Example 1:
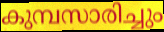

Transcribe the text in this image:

കുമ്പസാരിച്ചും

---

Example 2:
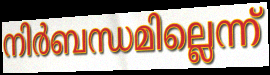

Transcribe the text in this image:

നിർബന്ധമില്ലെന്ന്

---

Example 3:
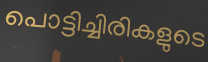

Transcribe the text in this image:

പൊട്ടിച്ചിരികളുടെ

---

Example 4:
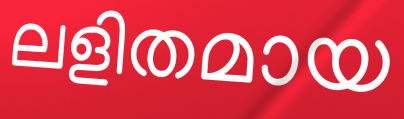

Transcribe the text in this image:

ലളിതമായ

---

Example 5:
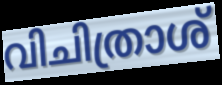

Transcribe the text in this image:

വിചിത്രാശ്